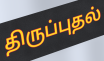
திருப்புதல்